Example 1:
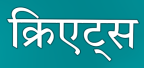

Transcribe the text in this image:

क्रिएट्स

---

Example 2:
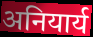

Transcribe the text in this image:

अनियार्य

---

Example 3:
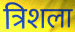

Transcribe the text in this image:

त्रिशला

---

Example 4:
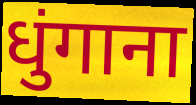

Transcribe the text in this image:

धुंगाना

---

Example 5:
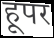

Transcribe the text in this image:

हूपर